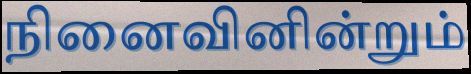
நினைவினின்றும்